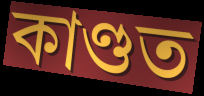
কাণ্ডত